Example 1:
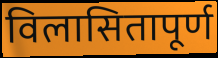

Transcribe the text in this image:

विलासितापूर्ण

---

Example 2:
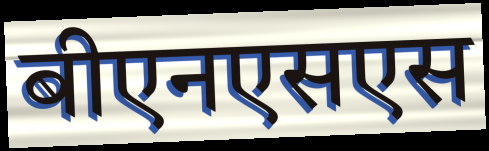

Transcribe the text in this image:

बीएनएसएस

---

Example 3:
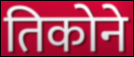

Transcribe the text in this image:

तिकोने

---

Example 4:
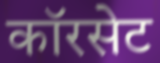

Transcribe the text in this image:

कॉरसेट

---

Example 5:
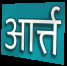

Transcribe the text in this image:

आर्त्त